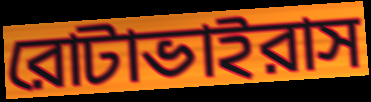
রোটাভাইরাস